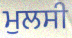
ਮੁਲਸੀ